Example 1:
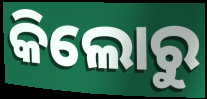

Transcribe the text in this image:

କିଲୋରୁ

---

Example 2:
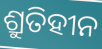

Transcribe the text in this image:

ଶ୍ରୁତିହୀନ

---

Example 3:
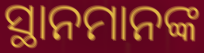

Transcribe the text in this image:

ସ୍ଥାନମାନଙ୍କ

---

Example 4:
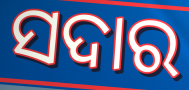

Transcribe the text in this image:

ସଦାର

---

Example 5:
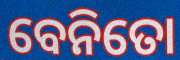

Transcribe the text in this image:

ବେନିତୋ